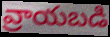
వ్రాయబడి